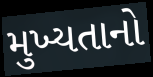
મુખ્યતાનો